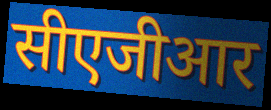
सीएजीआर